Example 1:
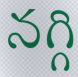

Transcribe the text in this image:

నగ్గి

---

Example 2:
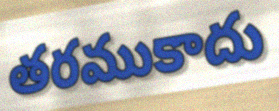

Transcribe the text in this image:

తరముకాదు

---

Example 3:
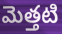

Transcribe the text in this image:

మెత్తటి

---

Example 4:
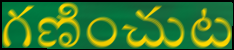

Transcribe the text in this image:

గణించుట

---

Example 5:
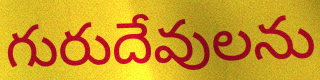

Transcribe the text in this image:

గురుదేవులను